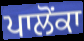
ਪਾਲੋਂਕਾ